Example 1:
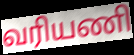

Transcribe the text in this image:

வரியணி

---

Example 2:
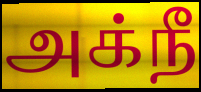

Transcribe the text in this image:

அக்நீ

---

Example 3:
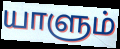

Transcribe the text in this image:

யாளும்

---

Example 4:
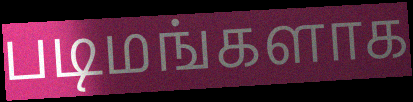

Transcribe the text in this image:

படிமங்களாக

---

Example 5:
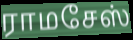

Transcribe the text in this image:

ராமசேஸ்